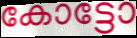
കോട്ടോ